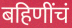
बहिणींचं